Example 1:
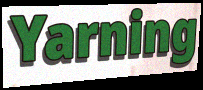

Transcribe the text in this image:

Yarning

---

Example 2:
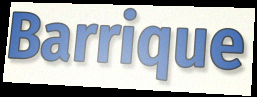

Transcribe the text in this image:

Barrique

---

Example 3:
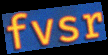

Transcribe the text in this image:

fvsr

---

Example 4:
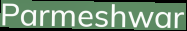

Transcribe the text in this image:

Parmeshwar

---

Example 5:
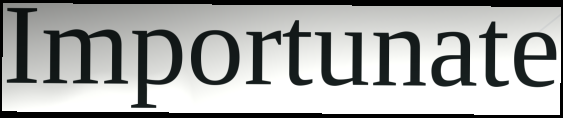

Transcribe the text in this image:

Importunate